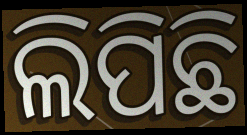
ଲିପିଛି